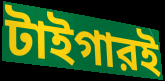
টাইগারই